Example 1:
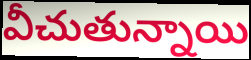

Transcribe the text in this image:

వీచుతున్నాయి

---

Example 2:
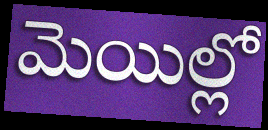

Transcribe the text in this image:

మెయిల్లో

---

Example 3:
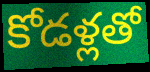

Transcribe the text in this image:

కోడళ్లతో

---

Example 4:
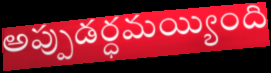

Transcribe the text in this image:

అప్పుడర్ధమయ్యింది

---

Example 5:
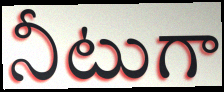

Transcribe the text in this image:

నీటుగా